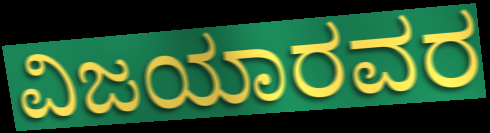
ವಿಜಯಾರವರ